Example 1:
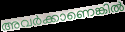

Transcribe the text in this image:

അവർക്കാണെങ്കിൽ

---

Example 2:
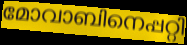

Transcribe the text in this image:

മോവാബിനെപ്പറ്റി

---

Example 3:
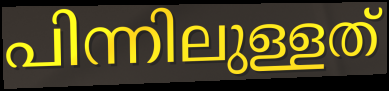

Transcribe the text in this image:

പിന്നിലുള്ളത്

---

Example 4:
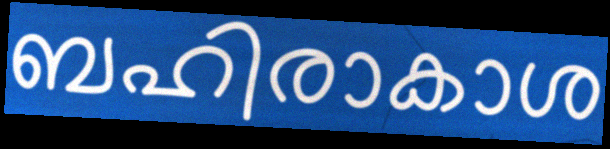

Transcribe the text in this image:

ബഹിരാകാശ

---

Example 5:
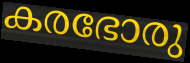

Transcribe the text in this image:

കരഭോരു